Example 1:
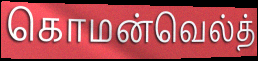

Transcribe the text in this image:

கொமன்வெல்த்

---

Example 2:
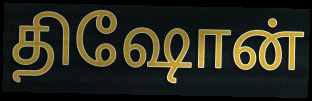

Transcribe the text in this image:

திஷோன்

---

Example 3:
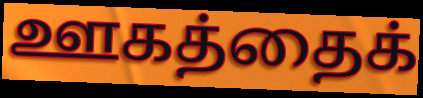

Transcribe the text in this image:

ஊகத்தைக்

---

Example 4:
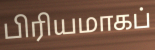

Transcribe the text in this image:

பிரியமாகப்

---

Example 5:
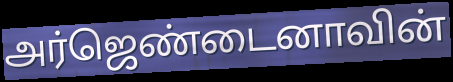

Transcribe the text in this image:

அர்ஜெண்டைனாவின்